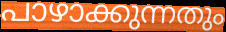
പാഴാക്കുന്നതും